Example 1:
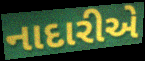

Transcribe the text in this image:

નાદારીએ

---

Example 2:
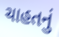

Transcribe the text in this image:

ચાહતનું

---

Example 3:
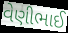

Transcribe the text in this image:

વેણીભાઈ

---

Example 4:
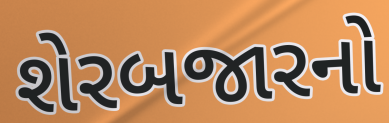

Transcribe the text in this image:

શેરબજારનો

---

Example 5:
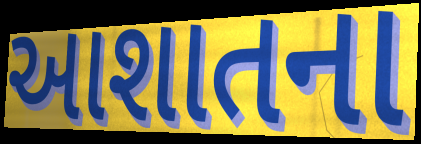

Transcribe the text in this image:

આશાતના